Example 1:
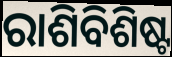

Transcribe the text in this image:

ରାଶିବିଶିଷ୍ଟ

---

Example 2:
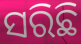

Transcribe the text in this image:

ସରିଛି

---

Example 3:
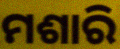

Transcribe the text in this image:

ମଶାରି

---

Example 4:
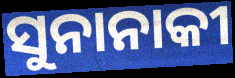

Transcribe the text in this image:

ସୁନାନାକୀ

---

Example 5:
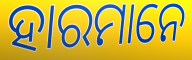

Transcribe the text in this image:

ହାରମାନେ